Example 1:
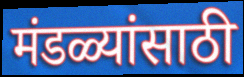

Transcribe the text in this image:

मंडळ्यांसाठी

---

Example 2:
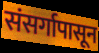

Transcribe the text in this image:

संसर्गापासून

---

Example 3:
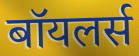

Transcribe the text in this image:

बॉयलर्स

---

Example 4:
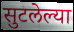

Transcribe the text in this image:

सुटलेल्या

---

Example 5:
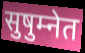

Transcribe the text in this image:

सुषुम्नेत